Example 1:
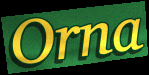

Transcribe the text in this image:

Orna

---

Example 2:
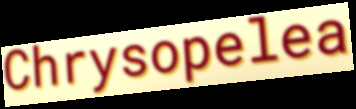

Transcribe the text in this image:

Chrysopelea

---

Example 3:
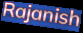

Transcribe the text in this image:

Rajanish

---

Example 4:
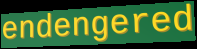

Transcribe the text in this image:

endengered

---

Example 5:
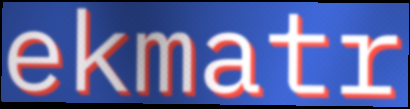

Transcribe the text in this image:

ekmatr